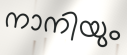
നാനിയും